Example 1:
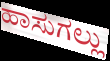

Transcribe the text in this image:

ಹಾಸುಗಲ್ಲು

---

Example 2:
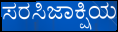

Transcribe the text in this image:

ಸರಸಿಜಾಕ್ಷಿಯ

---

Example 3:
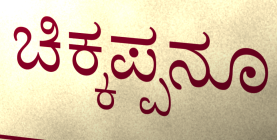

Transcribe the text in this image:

ಚಿಕ್ಕಪ್ಪನೂ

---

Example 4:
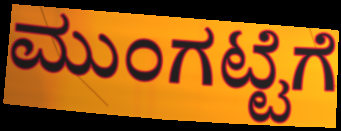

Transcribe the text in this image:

ಮುಂಗಟ್ಟೆಗೆ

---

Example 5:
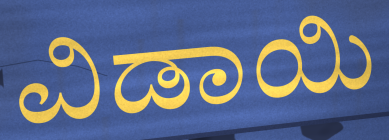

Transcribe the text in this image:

ವಿಡಾಯಿ